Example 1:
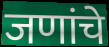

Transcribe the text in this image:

जणांचे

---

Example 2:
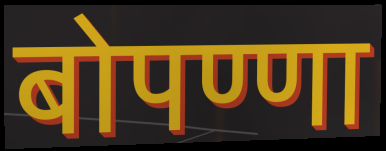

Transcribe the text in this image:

बोपण्णा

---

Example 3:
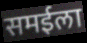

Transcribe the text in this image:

समईला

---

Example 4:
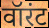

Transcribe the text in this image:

वॉरंट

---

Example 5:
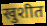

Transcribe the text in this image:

खुशीत